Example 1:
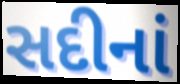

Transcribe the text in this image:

સદીનાં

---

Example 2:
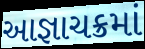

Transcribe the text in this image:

આજ્ઞાચક્રમાં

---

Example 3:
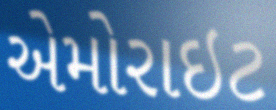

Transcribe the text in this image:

એમોરાઇટ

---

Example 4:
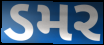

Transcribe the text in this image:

ડમર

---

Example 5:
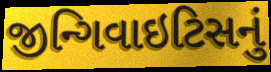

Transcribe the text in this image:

જીન્ગિવાઇટિસનું